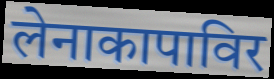
लेनाकापाविर